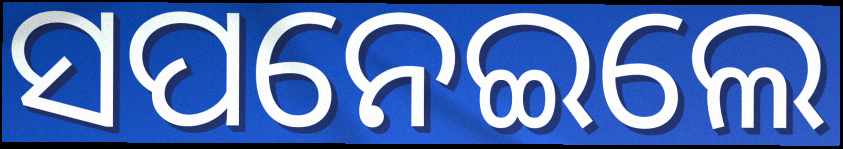
ସପନେଇଲେ